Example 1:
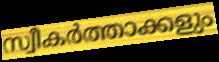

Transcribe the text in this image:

സ്വീകർത്താക്കളും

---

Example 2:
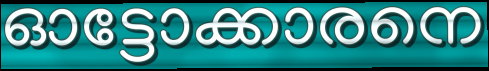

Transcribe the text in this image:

ഓട്ടോക്കാരനെ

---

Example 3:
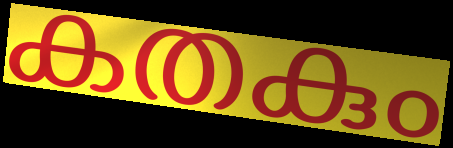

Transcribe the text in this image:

കതകും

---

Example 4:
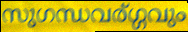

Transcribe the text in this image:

സുഗന്ധവര്ഗ്ഗവും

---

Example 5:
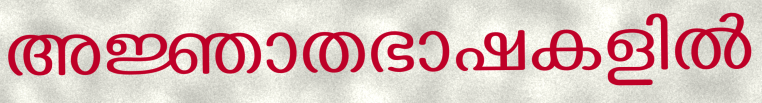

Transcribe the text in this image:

അജ്ഞാതഭാഷകളിൽ